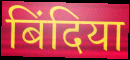
बिंदिया